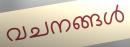
വചനങ്ങൾ